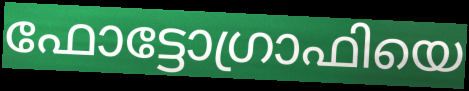
ഫോട്ടോഗ്രാഫിയെ